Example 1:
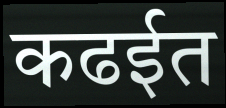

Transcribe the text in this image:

कढईत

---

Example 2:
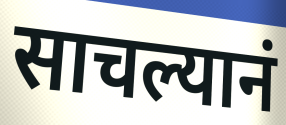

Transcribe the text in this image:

साचल्यानं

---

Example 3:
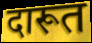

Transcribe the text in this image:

दारूत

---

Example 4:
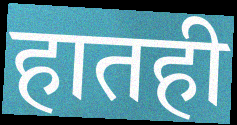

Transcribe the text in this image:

हातही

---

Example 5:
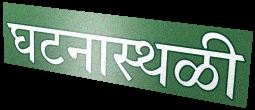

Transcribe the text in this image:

घटनास्थळी